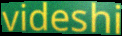
videshi